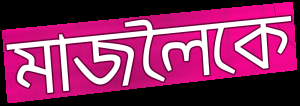
মাজলৈকে